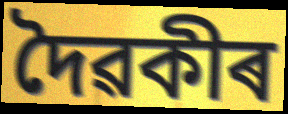
দৈৱকীৰ